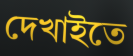
দেখাইতে